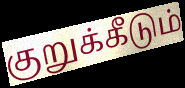
குறுக்கீடும்